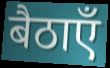
बैठाएँ